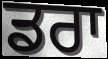
ਡਰਾ